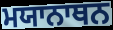
ਮਯਾਨਾਥਨ